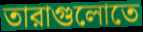
তারাগুলোতে